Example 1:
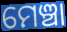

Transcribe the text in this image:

ମେଞ୍ଚା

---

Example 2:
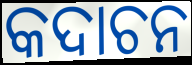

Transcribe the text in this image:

କଦାଚନ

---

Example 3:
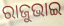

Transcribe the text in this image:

ରାଜୁଭାଇ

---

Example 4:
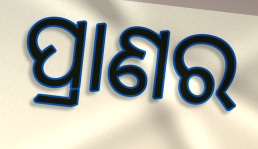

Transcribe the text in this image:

ପ୍ରାଣର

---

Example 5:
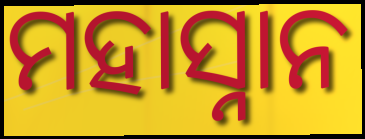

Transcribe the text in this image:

ମହାସ୍ନାନ